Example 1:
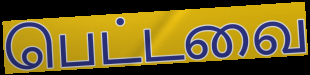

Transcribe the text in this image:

பெட்டவை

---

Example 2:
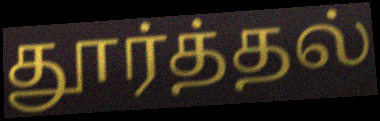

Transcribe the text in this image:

தூர்த்தல்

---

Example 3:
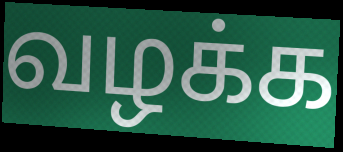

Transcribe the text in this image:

வழக்க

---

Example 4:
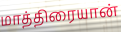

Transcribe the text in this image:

மாத்திரையான்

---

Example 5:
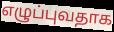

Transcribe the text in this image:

எழுப்புவதாக